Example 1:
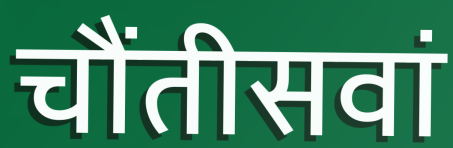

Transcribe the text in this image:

चौंतीसवां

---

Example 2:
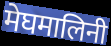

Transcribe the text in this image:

मेघमालिनी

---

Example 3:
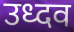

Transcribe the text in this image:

उध्दव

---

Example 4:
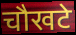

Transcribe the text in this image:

चौखटे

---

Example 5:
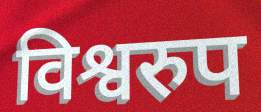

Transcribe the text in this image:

विश्वरुप